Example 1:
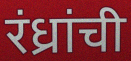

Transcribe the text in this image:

रंध्रांची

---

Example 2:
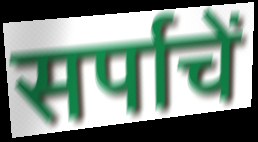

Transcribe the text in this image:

सर्पाचें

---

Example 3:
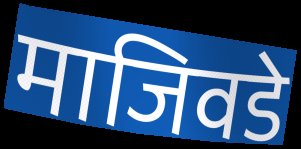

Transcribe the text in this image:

माजिवडे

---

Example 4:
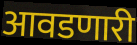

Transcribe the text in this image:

आवडणारी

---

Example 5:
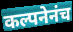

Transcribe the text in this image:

कल्पनेनंच